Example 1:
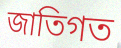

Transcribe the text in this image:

জাতিগত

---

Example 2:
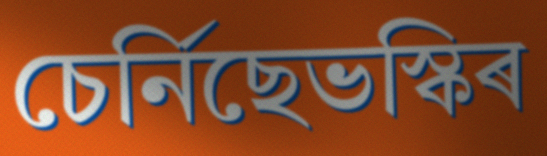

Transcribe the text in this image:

চেৰ্নিছেভস্কিৰ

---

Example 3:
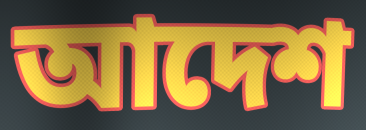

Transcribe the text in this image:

আদেশ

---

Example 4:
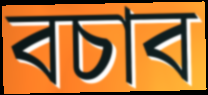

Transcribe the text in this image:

বচাব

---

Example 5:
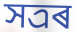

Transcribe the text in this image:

সত্ৰৰ